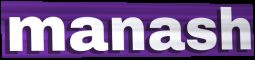
manash